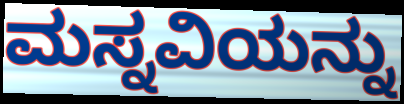
ಮಸ್ನವಿಯನ್ನು